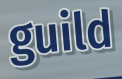
guild